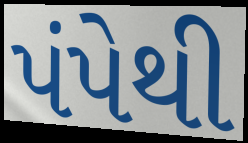
પંપેથી